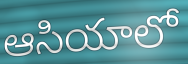
ఆసియాలో